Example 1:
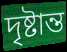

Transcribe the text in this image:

দৃষ্টান্ত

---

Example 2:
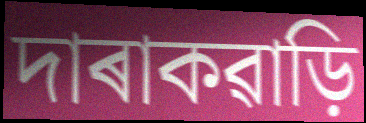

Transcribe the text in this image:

দাৰাকৱাড়ি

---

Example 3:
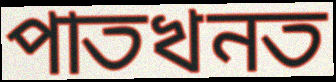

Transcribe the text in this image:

পাতখনত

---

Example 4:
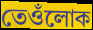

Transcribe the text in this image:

তেওঁলোক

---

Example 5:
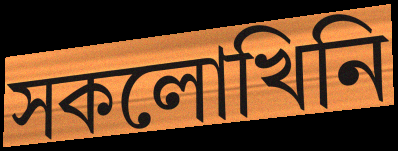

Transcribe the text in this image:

সকলোখিনি